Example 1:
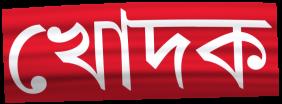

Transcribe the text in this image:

খোদক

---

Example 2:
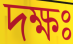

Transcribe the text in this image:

দক্ষঃ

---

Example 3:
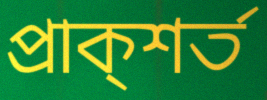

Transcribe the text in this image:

প্রাক্‌শর্ত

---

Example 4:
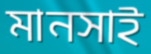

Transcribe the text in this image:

মানসাই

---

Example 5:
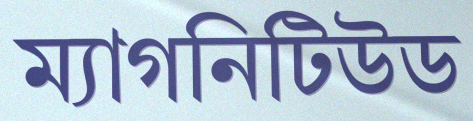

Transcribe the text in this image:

ম্যাগনিটিউড